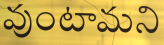
వుంటామని